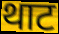
थाट